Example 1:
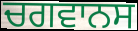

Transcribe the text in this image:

ਚਗਵਾਨਸ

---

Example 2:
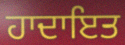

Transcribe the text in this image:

ਹਾਦਾਇਤ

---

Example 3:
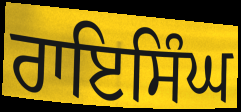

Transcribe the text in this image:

ਰਾਇਸਿੰਘ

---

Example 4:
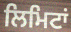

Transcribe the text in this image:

ਲਿਮਿਟਾਂ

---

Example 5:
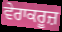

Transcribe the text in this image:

ਵੇਰਾਕਰੂਜ਼